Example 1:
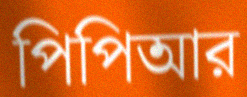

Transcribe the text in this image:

পিপিআর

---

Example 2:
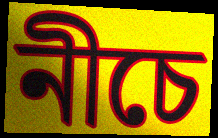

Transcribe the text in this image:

নীচে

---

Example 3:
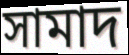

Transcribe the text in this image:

সামাদ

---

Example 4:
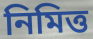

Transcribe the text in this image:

নিমিত্ত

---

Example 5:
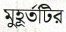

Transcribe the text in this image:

মুহূর্তটির